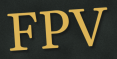
FPV